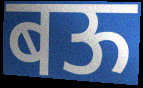
बऊ